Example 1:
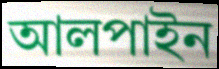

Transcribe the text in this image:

আলপাইন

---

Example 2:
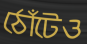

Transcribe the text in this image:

ঠোঁটেও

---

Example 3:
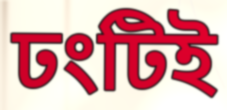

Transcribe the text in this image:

ঢংটিই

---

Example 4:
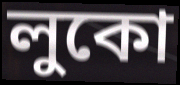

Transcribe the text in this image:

লুকো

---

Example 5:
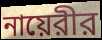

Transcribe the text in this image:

নায়েরীর